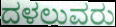
ದಳಲುವರು